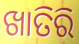
ଖାତିରି